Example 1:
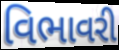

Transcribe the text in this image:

વિભાવરી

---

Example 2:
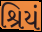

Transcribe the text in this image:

શ્રિયં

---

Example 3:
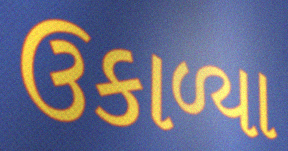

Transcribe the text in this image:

ઉકાળ્યા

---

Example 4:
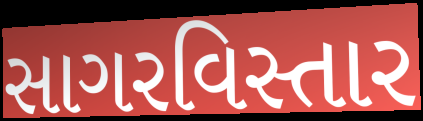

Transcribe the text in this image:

સાગરવિસ્તાર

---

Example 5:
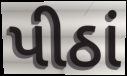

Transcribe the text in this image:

પીઠાં